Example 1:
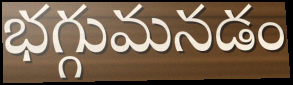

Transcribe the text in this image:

భగ్గుమనడం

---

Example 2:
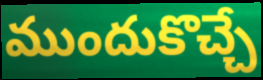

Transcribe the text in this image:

ముందుకొచ్చే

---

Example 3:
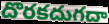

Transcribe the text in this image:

దొరకదుగదా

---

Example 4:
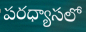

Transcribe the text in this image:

పరధ్యాసలో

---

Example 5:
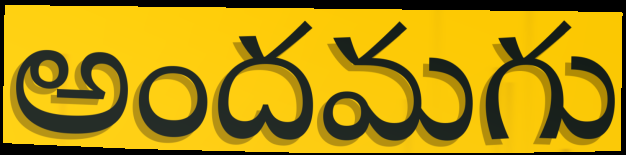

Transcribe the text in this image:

అందమగు